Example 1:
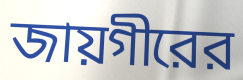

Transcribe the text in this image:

জায়গীরের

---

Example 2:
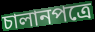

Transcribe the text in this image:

চালানপত্রে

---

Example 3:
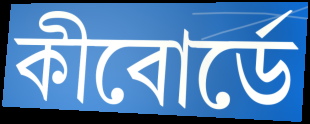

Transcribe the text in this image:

কীবোর্ডে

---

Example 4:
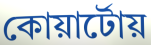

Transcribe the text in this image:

কোয়ার্টোয়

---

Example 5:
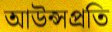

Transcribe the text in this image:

আউন্সপ্রতি